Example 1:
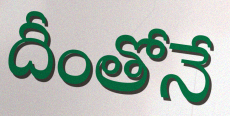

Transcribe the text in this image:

దీంతోనే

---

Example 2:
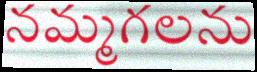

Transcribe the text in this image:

నమ్మగలను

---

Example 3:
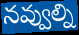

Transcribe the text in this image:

నవ్వుల్ని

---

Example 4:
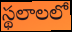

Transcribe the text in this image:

స్థలాలలో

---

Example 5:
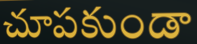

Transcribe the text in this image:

చూపకుండా